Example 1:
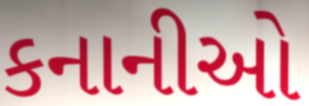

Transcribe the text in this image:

કનાનીઓ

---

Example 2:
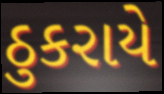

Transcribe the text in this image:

ઠુકરાયે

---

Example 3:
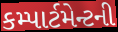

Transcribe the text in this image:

કમ્પાર્ટમેન્ટની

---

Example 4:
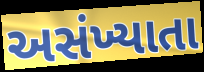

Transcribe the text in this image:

અસંખ્યાતા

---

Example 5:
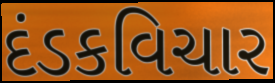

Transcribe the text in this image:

દંડકવિચાર